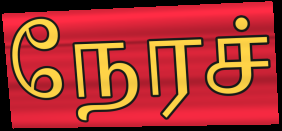
நேரச்